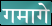
गमागे